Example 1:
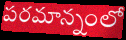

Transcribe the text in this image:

పరమాన్నంలో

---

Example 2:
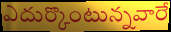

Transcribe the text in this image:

ఎదుర్కొంటున్నవారే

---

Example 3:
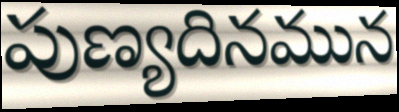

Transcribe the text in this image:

పుణ్యదినమున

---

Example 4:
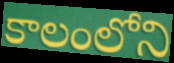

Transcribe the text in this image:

కాలంలోని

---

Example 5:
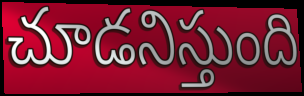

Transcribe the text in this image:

చూడనిస్తుంది